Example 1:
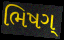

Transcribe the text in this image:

ભિષગ્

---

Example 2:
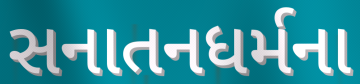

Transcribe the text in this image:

સનાતનધર્મના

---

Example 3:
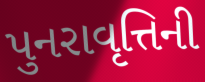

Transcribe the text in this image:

પુનરાવૃત્તિની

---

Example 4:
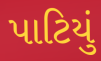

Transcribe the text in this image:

પાટિયું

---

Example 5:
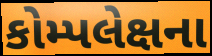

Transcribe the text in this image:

કોમ્પલેક્ષના